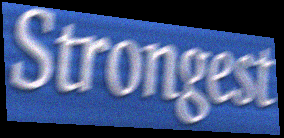
Strongest